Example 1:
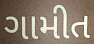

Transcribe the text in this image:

ગામીત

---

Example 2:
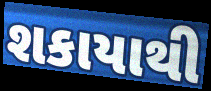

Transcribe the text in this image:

શકાયાથી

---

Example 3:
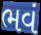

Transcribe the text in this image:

ભવં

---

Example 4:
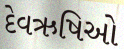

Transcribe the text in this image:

દેવઋષિઓ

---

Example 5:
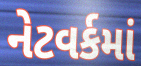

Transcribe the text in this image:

નેટવર્કમાં